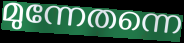
മുന്നേതന്നെ